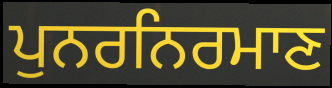
ਪੁਨਰਨਿਰਮਾਣ